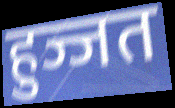
हुज्जत